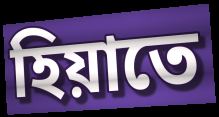
হিয়াতে